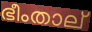
ഭീംതാല്